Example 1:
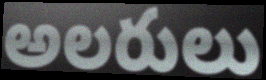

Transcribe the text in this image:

అలరులు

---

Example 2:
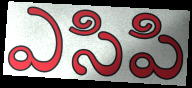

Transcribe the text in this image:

ఎసిపి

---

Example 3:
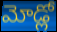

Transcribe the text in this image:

మోడ్లో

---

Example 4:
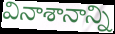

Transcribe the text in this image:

వినాశానాన్ని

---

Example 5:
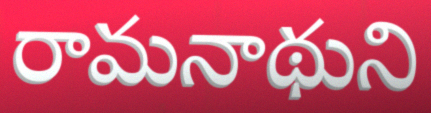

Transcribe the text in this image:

రామనాథుని